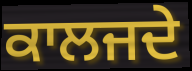
ਕਾਲਜਦੇ